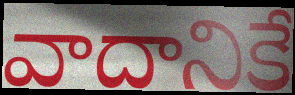
వాదానికే